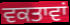
ਵਕਤਾਵਾਂ